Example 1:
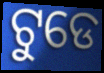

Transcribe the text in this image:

ଟୁଡେ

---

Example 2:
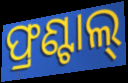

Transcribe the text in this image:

ଫ୍ରଣ୍ଟାଲ୍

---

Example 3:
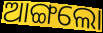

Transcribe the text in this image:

ଆଙ୍ଗଲୋ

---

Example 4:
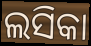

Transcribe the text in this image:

ଲସିକା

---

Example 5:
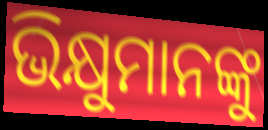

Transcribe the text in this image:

ଭିକ୍ଷୁମାନଙ୍କୁ